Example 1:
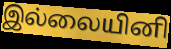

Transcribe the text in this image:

இல்லையினி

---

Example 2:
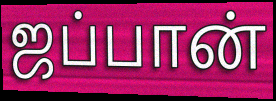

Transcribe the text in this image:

ஜப்பான்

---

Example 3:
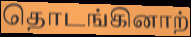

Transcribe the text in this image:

தொடங்கினாற்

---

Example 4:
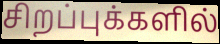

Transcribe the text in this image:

சிறப்புக்களில்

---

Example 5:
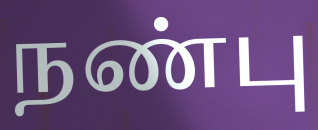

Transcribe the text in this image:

நண்பு